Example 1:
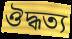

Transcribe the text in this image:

ঔদ্ধত্য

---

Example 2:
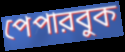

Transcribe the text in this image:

পেপারবুক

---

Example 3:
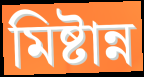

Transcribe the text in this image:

মিষ্টান্ন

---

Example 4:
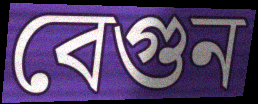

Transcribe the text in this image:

বেগুন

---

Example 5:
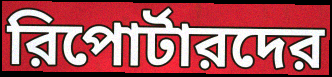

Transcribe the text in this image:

রিপোর্টারদের